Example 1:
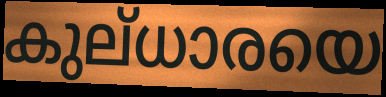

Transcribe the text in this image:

കുല്ധാരയെ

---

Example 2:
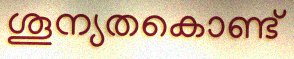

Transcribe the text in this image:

ശൂന്യതകൊണ്ട്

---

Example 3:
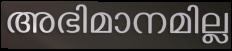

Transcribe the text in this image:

അഭിമാനമില്ല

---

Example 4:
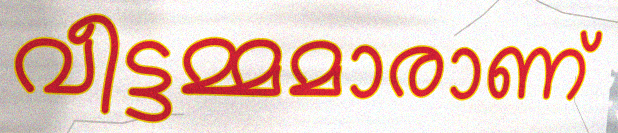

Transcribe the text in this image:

വീട്ടമ്മമാരാണ്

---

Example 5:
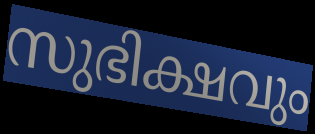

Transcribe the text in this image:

സുഭിക്ഷവും